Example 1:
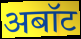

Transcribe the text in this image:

अबॉट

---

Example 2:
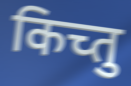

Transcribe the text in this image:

किच्तु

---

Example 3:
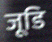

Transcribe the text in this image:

जूडि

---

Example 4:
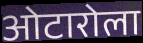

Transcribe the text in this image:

ओटारोला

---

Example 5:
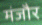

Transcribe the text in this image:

मंजौर